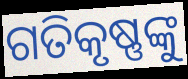
ଗତିକୃଷ୍ଣଙ୍କୁ